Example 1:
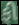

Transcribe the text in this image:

ફી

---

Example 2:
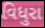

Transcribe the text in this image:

વિધુરા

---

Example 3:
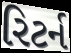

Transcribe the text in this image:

રિટર્ન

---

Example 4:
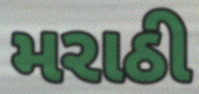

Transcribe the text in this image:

મરાઠી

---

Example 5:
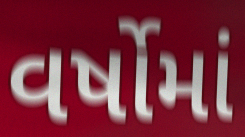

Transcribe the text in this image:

વર્ષોમાં